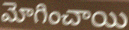
మోగించాయి